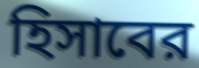
হিসাবের